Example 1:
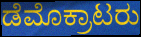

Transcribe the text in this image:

ಡೆಮೊಕ್ರಾಟರು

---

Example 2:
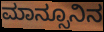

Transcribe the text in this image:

ಮಾನ್ಸೂನಿನ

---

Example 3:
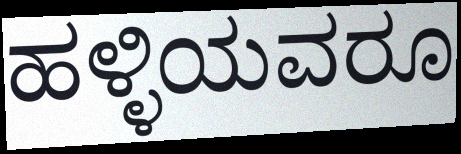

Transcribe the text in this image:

ಹಳ್ಳಿಯವರೂ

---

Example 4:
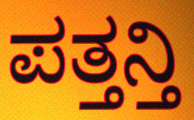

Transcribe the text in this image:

ಪತ್ತನ್ತಿ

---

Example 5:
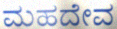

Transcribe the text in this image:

ಮಹದೇವ